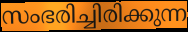
സംഭരിച്ചിരിക്കുന്ന